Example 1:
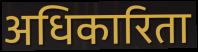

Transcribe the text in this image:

अधिकारिता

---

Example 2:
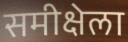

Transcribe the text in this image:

समीक्षेला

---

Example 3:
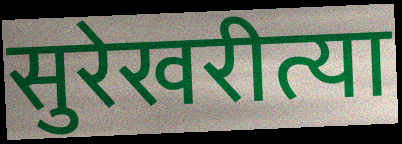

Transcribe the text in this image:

सुरेखरीत्या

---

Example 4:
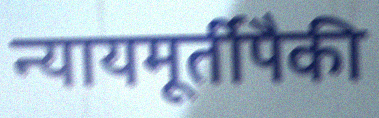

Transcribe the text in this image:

न्यायमूर्तीपैकी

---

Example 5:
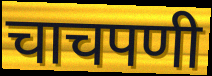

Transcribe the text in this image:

चाचपणी